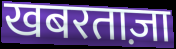
खबरताज़ा